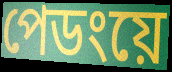
পেডংয়ে